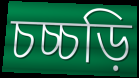
চচ্চড়ি